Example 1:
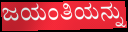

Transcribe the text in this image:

ಜಯಂತಿಯನ್ನು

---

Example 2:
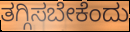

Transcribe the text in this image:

ತಗ್ಗಿಸಬೇಕೆಂದು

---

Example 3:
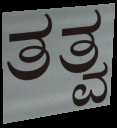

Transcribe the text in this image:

ತತ್ವ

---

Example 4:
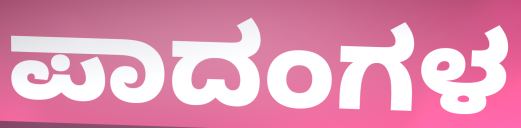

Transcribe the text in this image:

ಪಾದಂಗಳ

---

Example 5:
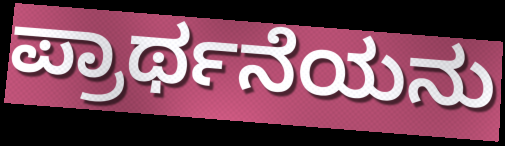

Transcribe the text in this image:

ಪ್ರಾರ್ಥನೆಯನು